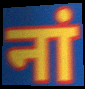
नां